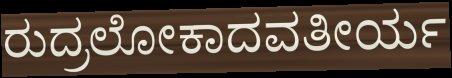
ರುದ್ರಲೋಕಾದವತೀರ್ಯ